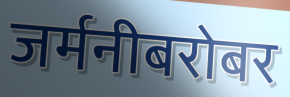
जर्मनीबरोबर